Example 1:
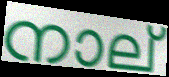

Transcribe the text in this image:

നാല്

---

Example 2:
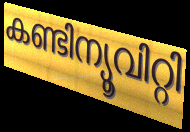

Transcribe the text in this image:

കണ്ടിന്യൂവിറ്റി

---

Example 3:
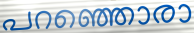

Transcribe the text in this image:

പറഞ്ഞൊരാ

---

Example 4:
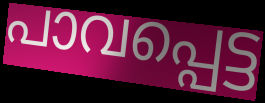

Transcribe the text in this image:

പാവപ്പെട്ട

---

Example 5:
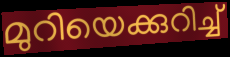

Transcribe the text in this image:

മുറിയെക്കുറിച്ച്